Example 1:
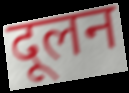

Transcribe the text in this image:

दूलन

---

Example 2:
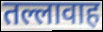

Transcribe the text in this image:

तल्लावाह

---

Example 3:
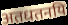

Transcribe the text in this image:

अतधतनयि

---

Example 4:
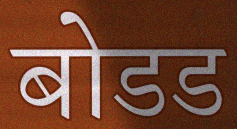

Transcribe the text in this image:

बोडड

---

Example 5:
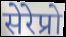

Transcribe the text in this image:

सेरेप्रो